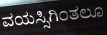
ವಯಸ್ಸಿಗಿಂತಲೂ